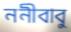
ননীবাবু